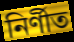
নির্ণীত